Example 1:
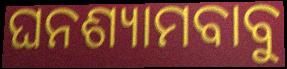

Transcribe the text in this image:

ଘନଶ୍ୟାମବାବୁ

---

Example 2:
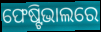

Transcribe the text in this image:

ଫେଷ୍ଟିଭାଲରେ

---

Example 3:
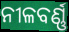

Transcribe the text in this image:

ନୀଳବର୍ଣ୍ଣ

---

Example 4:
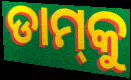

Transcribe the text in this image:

ଡାମ୍‍କୁ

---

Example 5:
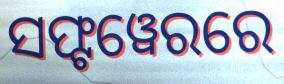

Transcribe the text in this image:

ସଫ୍ଟୱେରରେ